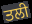
ਤਲੀ